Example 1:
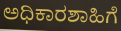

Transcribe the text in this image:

ಅಧಿಕಾರಶಾಹಿಗೆ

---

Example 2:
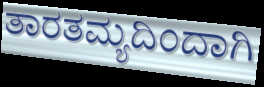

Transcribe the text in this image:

ತಾರತಮ್ಯದಿಂದಾಗಿ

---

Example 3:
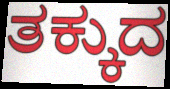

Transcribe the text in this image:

ತಕ್ಕುದ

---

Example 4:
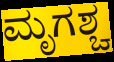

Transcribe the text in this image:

ಮೃಗಶ್ಚ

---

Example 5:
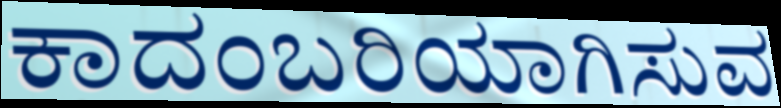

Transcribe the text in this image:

ಕಾದಂಬರಿಯಾಗಿಸುವ